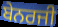
ਬੇਨਰਜੀ